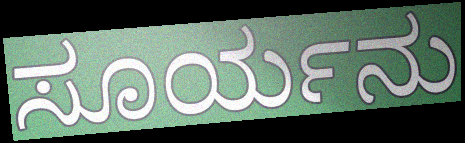
ಸೂರ್ಯನು